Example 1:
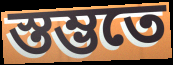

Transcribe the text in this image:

স্তম্ভতে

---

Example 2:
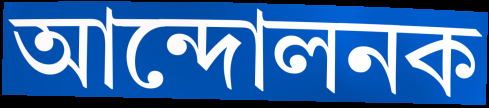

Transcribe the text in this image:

আন্দোলনক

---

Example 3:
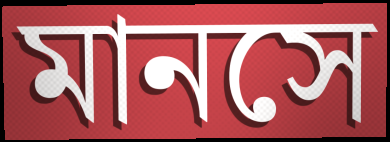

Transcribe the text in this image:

মানসে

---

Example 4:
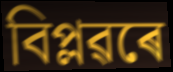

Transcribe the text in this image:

বিপ্লৱৰে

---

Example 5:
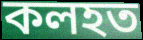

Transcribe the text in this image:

কলহত